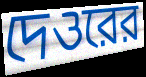
দেওরের